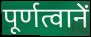
पूर्णत्वानें